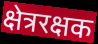
क्षेत्ररक्षक